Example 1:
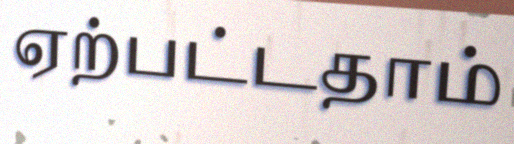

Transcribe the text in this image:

ஏற்பட்டதாம்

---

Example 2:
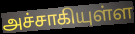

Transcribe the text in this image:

அச்சாகியுள்ள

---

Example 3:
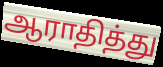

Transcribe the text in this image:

ஆராதித்து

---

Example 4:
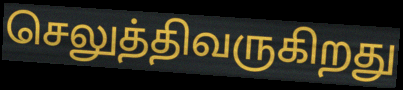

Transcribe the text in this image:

செலுத்திவருகிறது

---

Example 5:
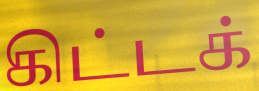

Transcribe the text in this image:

கிட்டக்